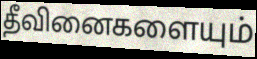
தீவினைகளையும்